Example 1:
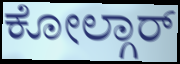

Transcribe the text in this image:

ಕೋಲ್ಗಾರ್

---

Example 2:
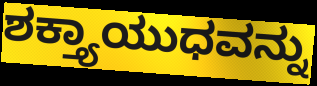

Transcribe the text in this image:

ಶಕ್ತ್ಯಾಯುಧವನ್ನು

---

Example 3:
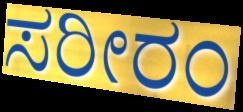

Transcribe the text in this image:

ಸರೀರಂ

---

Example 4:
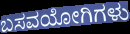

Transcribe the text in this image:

ಬಸವಯೋಗಿಗಳು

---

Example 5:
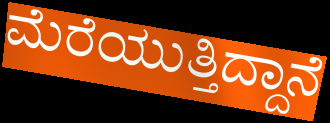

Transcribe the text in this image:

ಮೆರೆಯುತ್ತಿದ್ದಾನೆ